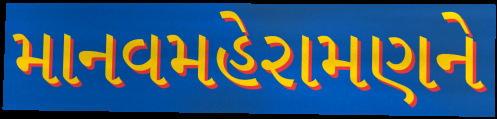
માનવમહેરામણને